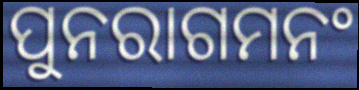
ପୁନରାଗମନଂ